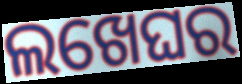
ଲଖେଘର